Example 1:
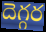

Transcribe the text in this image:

దెగ్గర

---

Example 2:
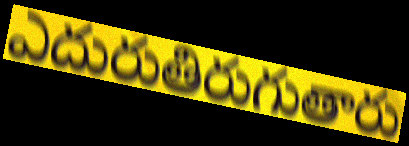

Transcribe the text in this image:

ఎదురుతిరుగుతారు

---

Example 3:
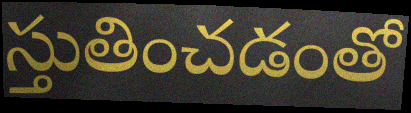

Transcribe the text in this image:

స్తుతించడంతో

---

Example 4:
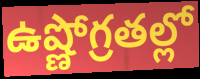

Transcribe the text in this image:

ఉష్ణోగ్రతల్లో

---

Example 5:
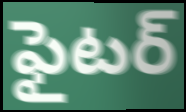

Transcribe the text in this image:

ఫైటర్